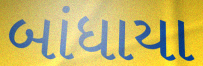
બાંધાયા